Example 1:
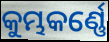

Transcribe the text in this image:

କୁମ୍ଭକର୍ଣ୍ଣେ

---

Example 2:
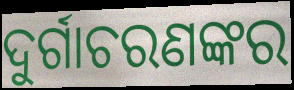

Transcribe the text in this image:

ଦୁର୍ଗାଚରଣଙ୍କର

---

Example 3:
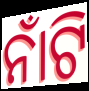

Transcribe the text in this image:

ନାଁଟି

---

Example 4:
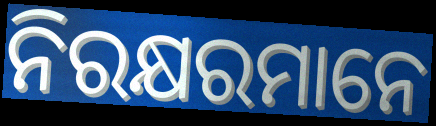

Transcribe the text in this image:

ନିରକ୍ଷରମାନେ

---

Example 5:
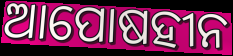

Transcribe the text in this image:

ଆପୋଷହୀନ